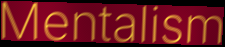
Mentalism